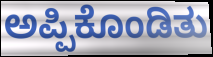
ಅಪ್ಪಿಕೊಂಡಿತು